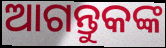
ଆଗନ୍ତୁକଙ୍କ